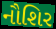
નૌશિર